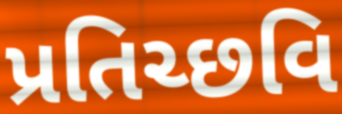
પ્રતિચ્છવિ